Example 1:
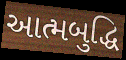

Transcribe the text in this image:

આત્મબુદ્ધિ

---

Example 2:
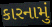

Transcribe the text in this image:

કારનામું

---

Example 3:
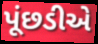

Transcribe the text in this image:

પૂંછડીએ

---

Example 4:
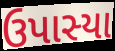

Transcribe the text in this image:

ઉપાસ્યા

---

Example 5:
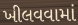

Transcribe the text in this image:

ખીલવવામાં